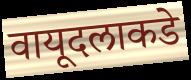
वायूदलाकडे